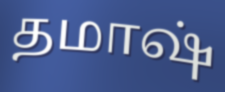
தமாஷ்